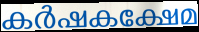
കർഷകക്ഷേമ